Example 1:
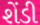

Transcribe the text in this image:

શેંડી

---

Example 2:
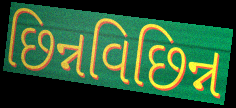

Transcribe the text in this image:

છિન્નવિછિન્ન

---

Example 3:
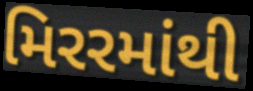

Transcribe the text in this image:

મિરરમાંથી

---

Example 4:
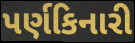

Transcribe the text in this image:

પર્ણકિનારી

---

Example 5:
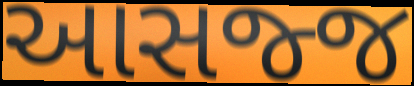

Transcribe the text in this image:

આસજ્જ